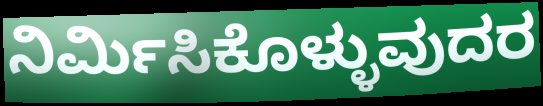
ನಿರ್ಮಿಸಿಕೊಳ್ಳುವುದರ